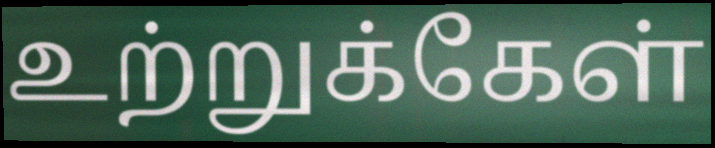
உற்றுக்கேள்